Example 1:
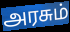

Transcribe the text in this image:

அரசும்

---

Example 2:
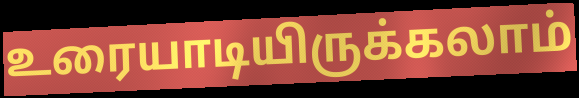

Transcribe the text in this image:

உரையாடியிருக்கலாம்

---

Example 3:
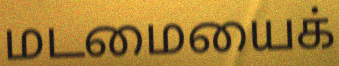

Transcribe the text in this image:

மடமையைக்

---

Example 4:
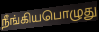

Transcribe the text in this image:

நீங்கியபொழுது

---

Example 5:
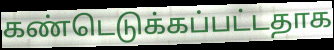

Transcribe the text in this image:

கண்டெடுக்கப்பட்டதாக